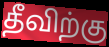
தீவிற்கு